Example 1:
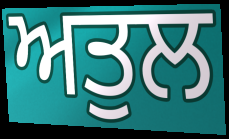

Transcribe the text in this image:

ਅਤੁਲ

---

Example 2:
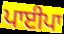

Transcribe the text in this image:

ਪਾਈਪਾ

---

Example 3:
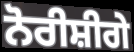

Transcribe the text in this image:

ਨੋਰੀਸ਼ੀਗੇ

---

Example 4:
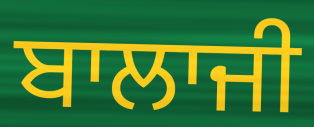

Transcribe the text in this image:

ਬਾਲਾਜੀ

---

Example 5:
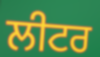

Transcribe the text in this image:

ਲੀਟਰ